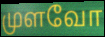
முளவோ